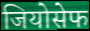
जियोसेफ